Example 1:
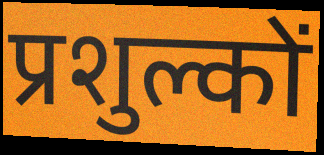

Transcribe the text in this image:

प्रशुल्कों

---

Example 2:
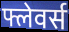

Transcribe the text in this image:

फ्लेवर्स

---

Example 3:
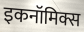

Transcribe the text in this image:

इकनॉमिक्स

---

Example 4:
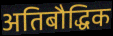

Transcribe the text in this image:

अतिबौद्धिक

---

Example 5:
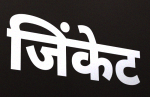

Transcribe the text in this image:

जिंकेट